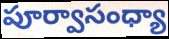
పూర్వాసంధ్యా